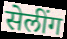
सेलींग